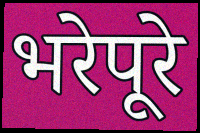
भरेपूरे